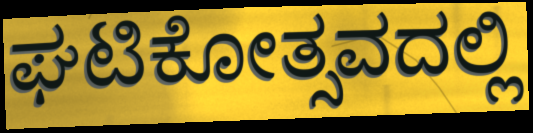
ಘಟಿಕೋತ್ಸವದಲ್ಲಿ